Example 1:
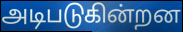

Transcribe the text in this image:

அடிபடுகின்றன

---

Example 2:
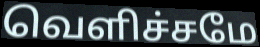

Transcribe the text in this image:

வெளிச்சமே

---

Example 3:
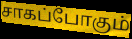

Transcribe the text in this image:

சாகப்போகும்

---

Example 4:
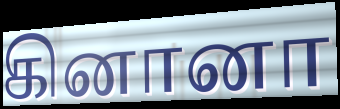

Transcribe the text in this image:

கினானா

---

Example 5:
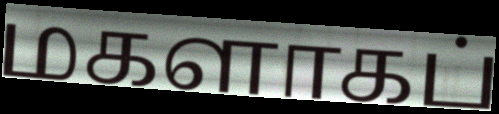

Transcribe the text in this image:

மகளாகப்